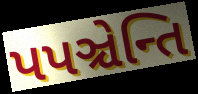
પપઞ્ચેન્તિ